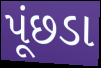
પૂંછડા